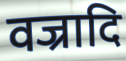
वज्रादि